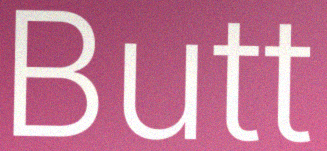
Butt